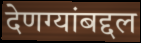
देणग्यांबद्दल